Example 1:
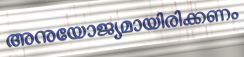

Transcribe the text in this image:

അനുയോജ്യമായിരിക്കണം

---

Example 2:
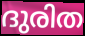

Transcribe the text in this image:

ദുരിത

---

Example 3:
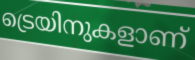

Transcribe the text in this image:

ട്രെയിനുകളാണ്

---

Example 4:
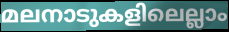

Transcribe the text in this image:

മലനാടുകളിലെല്ലാം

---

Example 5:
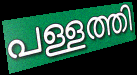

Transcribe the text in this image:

പള്ളത്തി